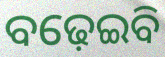
ବଢ଼େଇବି